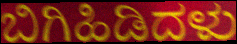
ಬಿಗಿಹಿಡಿದಳು